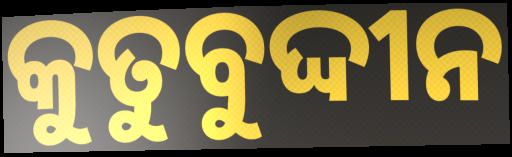
କୁତୁବୁଦ୍ଦୀନ